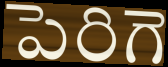
పెరిగె